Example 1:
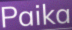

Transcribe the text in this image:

Paika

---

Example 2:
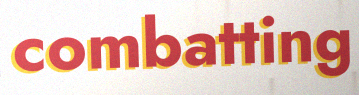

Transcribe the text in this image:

combatting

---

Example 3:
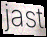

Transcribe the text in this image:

jast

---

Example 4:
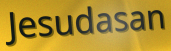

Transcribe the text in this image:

Jesudasan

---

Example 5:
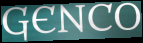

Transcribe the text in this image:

GENCO